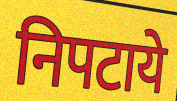
निपटाये